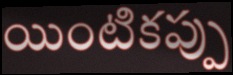
యింటికప్పు